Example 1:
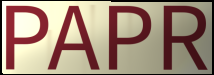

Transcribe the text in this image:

PAPR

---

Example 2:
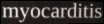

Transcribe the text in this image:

myocarditis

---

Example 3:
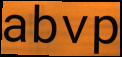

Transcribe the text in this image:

abvp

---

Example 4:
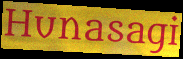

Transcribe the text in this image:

Hunasagi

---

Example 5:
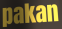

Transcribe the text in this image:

pakan